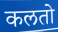
कलतो